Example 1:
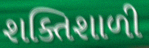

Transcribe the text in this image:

શક્તિશાળી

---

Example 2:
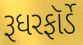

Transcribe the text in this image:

રૂધરફૉર્ડે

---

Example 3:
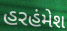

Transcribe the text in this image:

હરહંમેશ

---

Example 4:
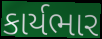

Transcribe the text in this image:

કાર્યભાર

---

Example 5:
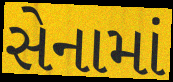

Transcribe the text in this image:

સેનામાં